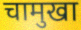
चामुखा